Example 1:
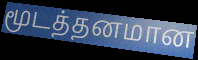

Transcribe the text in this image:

மூடத்தனமான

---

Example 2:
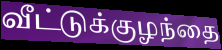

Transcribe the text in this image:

வீட்டுக்குழந்தை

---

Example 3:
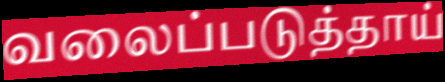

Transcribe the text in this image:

வலைப்படுத்தாய்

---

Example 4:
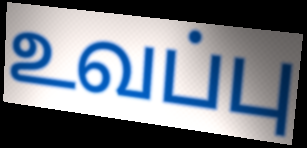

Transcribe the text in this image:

உவப்பு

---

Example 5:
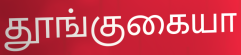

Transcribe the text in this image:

தூங்குகையா